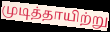
முடித்தாயிற்று